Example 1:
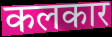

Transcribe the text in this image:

कलकार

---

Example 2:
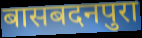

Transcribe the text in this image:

बासबदनपुरा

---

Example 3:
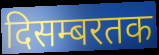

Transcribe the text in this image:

दिसम्बरतक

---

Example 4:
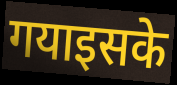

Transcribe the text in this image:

गयाइसके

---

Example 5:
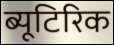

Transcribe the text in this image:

ब्यूटिरिक